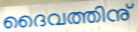
ദൈവത്തിനു്